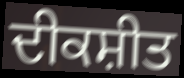
ਦੀਕਸ਼ੀਤ